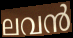
ലവൻ